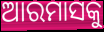
ଆରମାସକୁ